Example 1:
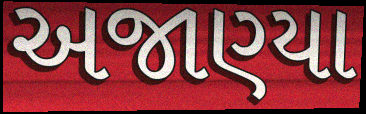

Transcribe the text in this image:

અજાણ્યા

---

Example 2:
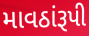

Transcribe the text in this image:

માવઠાંરૂપી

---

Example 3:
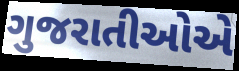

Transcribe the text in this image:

ગુજરાતીઓએ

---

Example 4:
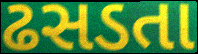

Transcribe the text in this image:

ઢસડતા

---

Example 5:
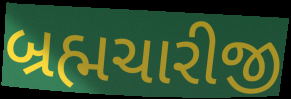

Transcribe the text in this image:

બ્રહ્મચારીજી